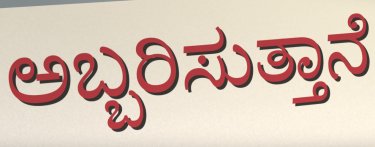
ಅಬ್ಬರಿಸುತ್ತಾನೆ